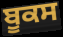
ਬੂਕਸ